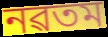
নৱতম